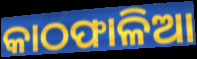
କାଠଫାଳିଆ